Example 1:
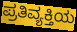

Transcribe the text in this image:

ಪ್ರತಿವ್ಯಕ್ತಿಯ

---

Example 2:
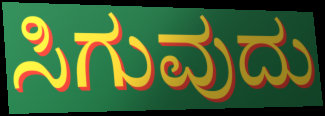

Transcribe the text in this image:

ಸಿಗುವುದು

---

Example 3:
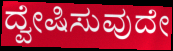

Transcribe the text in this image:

ದ್ವೇಷಿಸುವುದೇ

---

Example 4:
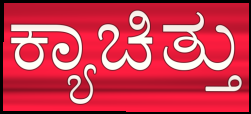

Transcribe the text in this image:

ಕ್ಯಾಚಿತ್ತು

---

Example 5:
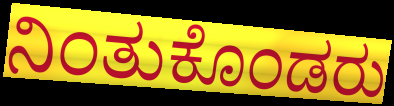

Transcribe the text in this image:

ನಿಂತುಕೊಂಡರು